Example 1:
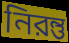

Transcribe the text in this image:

নিরন্তু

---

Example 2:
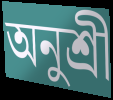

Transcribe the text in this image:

অনুশ্রী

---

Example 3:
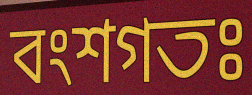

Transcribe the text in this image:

বংশগতঃ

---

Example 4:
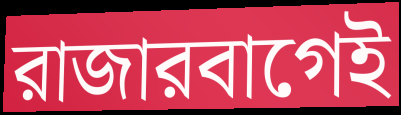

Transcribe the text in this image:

রাজারবাগেই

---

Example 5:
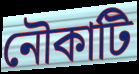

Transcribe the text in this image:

নৌকাটি